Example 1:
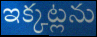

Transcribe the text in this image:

ఇక్కట్లను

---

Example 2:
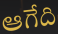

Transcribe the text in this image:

ఆగేది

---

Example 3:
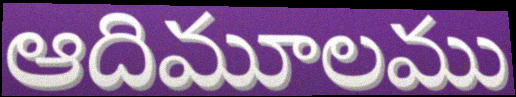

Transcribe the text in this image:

ఆదిమూలము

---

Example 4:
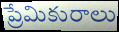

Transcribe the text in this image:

ప్రేమికురాలు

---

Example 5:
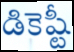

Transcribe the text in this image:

డికెష్టీ